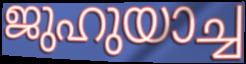
ജുഹുയാച്ച